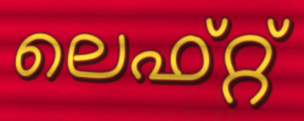
ലെഫ്റ്റ്